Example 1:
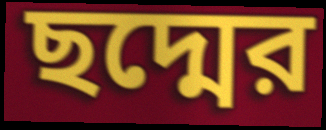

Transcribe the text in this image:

ছদ্মের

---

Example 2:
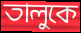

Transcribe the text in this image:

তালুকে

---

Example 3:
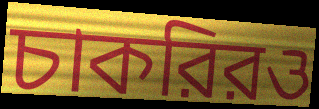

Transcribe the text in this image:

চাকরিরও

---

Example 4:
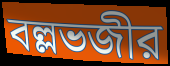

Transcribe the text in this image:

বল্লভজীর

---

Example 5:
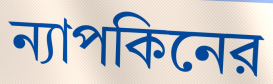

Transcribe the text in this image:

ন্যাপকিনের